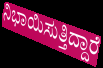
ನಿಭಾಯಿಸುತ್ತಿದ್ದಾರೆ